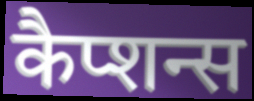
कैप्शन्स